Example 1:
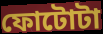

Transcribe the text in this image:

ফোটোটা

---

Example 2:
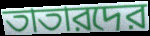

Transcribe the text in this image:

তাতারদের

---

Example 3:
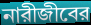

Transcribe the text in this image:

নারীজীবের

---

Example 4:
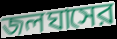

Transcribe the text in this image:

জলঘাসের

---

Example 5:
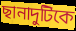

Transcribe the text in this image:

ছানাদুটিকে